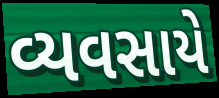
વ્યવસાયે